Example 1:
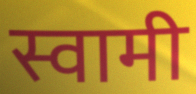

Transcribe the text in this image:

स्वामी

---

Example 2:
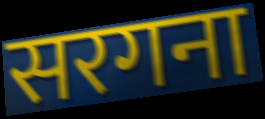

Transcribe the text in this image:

सरगना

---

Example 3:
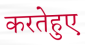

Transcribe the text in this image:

करतेहुए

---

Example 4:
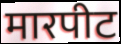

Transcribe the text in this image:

मारपीट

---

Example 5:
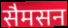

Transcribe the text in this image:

सैमसन